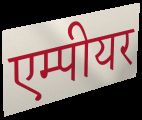
एम्पीयर